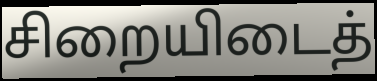
சிறையிடைத்